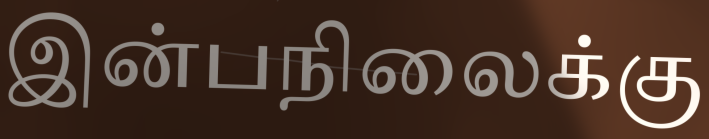
இன்பநிலைக்கு